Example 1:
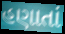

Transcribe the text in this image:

હણાતાં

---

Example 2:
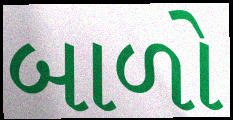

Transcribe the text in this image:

બાળો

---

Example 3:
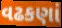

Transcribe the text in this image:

વઢકણાં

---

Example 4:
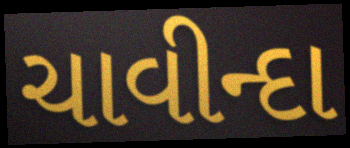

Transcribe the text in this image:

ચાવીન્દા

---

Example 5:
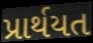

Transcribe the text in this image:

પ્રાર્થયત